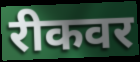
रीकवर